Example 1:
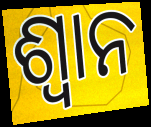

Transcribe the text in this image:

ଶ୍ୱାନ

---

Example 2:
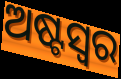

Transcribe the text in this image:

ଅଷ୍ଟସ୍ୱର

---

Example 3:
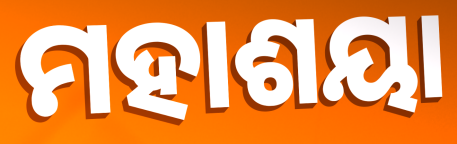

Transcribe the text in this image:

ମହାଶୟା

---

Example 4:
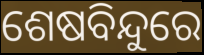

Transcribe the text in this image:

ଶେଷବିନ୍ଦୁରେ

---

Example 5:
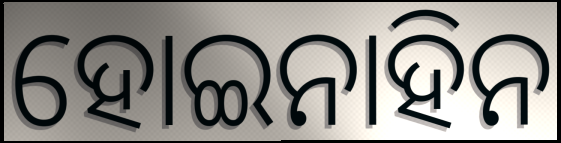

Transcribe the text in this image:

ହୋଇନାହିନ